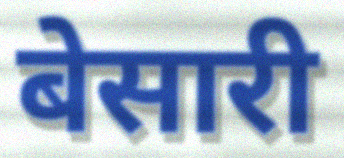
बेसारी